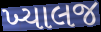
ખ્યાલજ